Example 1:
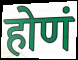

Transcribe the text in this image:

होणं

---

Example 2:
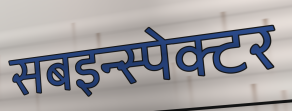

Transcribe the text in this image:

सबइन्स्पेक्टर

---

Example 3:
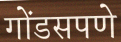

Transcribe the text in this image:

गोंडसपणे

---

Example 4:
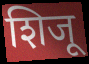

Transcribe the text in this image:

शिजू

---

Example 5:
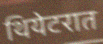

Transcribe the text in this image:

थियेटरात